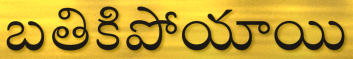
బతికిపోయాయి